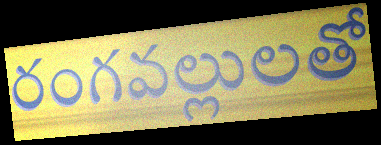
రంగవల్లులతో